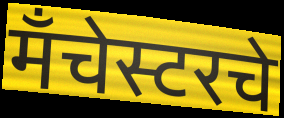
मँचेस्टरचे